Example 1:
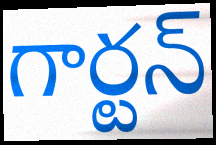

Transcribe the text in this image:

గార్టన్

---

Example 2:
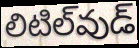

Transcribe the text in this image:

లిటిల్‌వుడ్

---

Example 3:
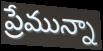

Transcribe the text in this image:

ప్రేమున్నా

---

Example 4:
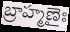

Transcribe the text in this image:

బ్రాహ్మణైః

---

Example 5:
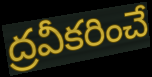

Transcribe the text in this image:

ద్రవీకరించే